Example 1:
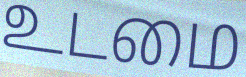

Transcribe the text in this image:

உடமை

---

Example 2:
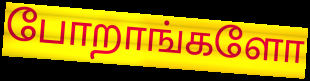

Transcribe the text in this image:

போறாங்களோ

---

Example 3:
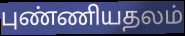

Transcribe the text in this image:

புண்ணியதலம்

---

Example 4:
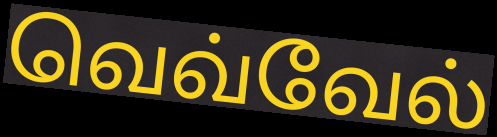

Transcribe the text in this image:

வெவ்வேல்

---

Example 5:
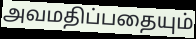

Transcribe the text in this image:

அவமதிப்பதையும்